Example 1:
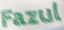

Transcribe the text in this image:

Fazul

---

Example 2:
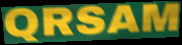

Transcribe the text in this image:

QRSAM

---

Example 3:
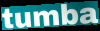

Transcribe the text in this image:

tumba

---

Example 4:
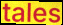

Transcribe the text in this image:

tales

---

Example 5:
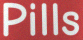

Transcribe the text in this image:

Pills